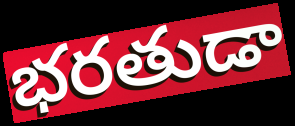
భరతుడా